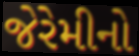
જેરેમીનો